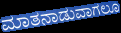
ಮಾತನಾಡುವಾಗಲೂ